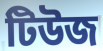
টিউজ